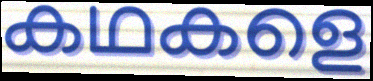
കഥകളെ